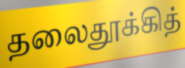
தலைதூக்கித்